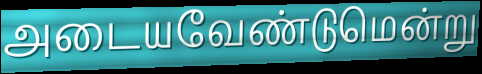
அடையவேண்டுமென்று